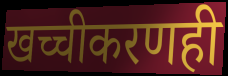
खच्चीकरणही